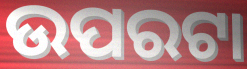
ଉପରଟା